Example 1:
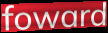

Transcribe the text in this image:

foward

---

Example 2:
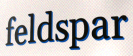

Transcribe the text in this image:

feldspar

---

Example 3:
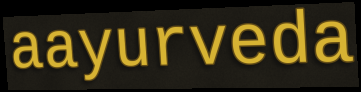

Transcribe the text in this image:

aayurveda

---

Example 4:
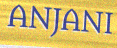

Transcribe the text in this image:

ANJANI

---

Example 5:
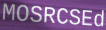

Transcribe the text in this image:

MOSRCSEd